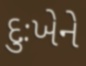
દુઃખેને